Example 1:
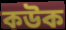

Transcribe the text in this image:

কউক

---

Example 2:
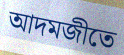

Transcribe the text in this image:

আদমজীতে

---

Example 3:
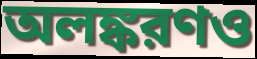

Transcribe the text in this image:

অলঙ্করণও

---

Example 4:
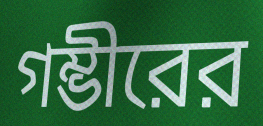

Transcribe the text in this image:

গম্ভীরের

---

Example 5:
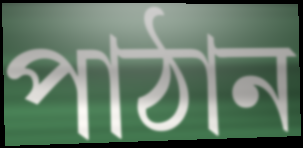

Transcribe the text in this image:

পাঠান